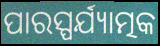
ପାରସ୍ପର୍ଯ୍ୟାତ୍ମକ